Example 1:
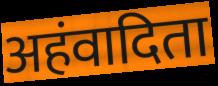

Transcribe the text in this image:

अहंवादिता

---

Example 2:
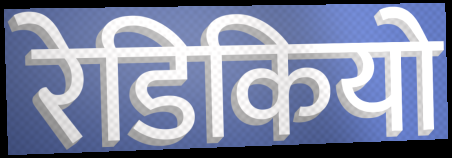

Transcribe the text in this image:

रेडिकियो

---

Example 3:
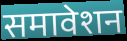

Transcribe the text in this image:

समावेशन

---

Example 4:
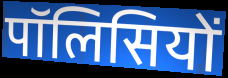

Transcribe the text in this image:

पॉलिसियों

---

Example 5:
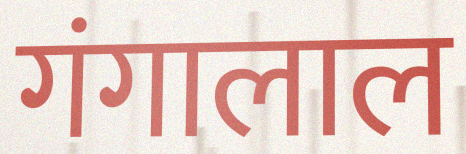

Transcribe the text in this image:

गंगालाल